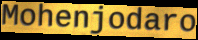
Mohenjodaro